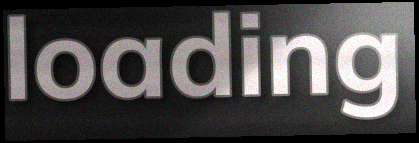
loading